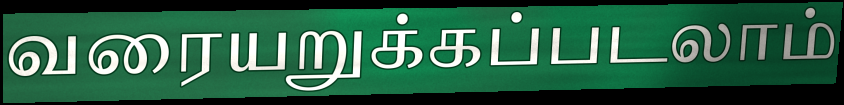
வரையறுக்கப்படலாம்